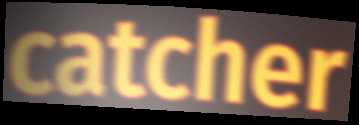
catcher